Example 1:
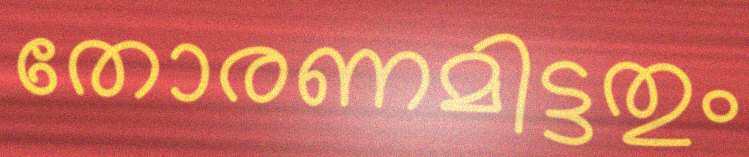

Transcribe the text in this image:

തോരണമിട്ടതും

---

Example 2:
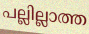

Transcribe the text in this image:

പല്ലില്ലാത്ത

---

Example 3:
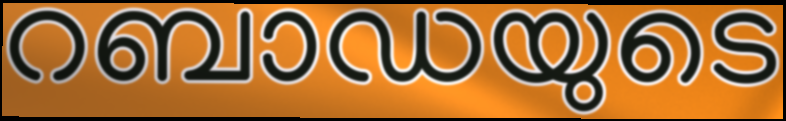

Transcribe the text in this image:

റബാഡയുടെ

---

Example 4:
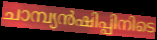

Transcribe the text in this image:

ചാമ്പ്യൻഷിപ്പിനിടെ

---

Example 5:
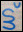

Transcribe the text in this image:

ട്ട്